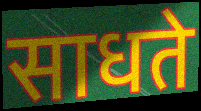
साधते